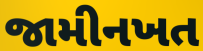
જામીનખત